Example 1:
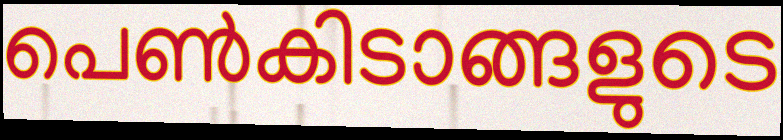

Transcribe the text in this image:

പെൺകിടാങ്ങളുടെ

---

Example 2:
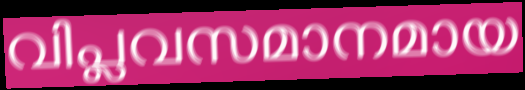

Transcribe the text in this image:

വിപ്ലവസമാനമായ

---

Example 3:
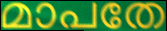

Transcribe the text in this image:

മാപതേ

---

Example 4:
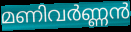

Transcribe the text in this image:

മണിവർണ്ണൻ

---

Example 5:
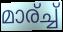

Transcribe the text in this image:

മാര്ച്ച്